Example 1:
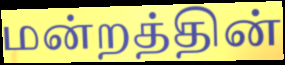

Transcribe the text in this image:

மன்றத்தின்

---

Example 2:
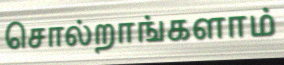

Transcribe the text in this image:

சொல்றாங்களாம்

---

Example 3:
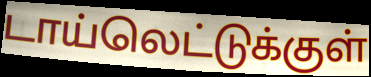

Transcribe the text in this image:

டாய்லெட்டுக்குள்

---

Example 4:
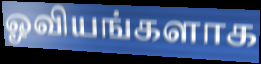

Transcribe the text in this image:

ஓவியங்களாக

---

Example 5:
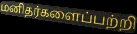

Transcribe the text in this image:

மனிதர்களைப்பற்றி